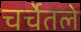
चर्चेतले